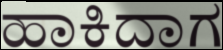
ಹಾಕಿದಾಗ